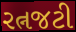
રત્નજટી